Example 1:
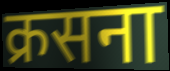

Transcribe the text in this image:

क्रसना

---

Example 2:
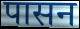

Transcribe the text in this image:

पासन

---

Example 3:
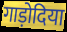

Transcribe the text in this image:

गाड़ोदिया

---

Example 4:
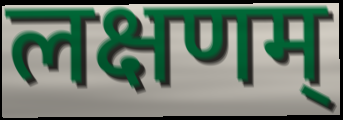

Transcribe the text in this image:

लक्षणम्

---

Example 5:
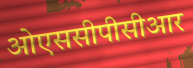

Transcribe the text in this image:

ओएससीपीसीआर